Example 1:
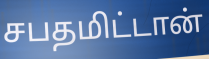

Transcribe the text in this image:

சபதமிட்டான்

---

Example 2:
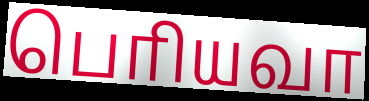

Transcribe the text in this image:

பெரியவா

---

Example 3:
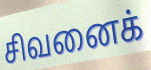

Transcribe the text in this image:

சிவனைக்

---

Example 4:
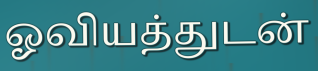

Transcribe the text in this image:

ஓவியத்துடன்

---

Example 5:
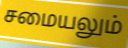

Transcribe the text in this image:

சமையலும்